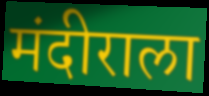
मंदीराला